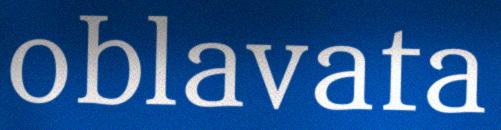
oblavata